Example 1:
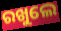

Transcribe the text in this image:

ରଖୁଲେ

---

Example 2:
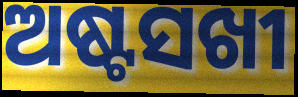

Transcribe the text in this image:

ଅଷ୍ଟସଖୀ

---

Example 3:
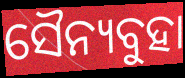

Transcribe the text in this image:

ସୈନ୍ୟବୁହା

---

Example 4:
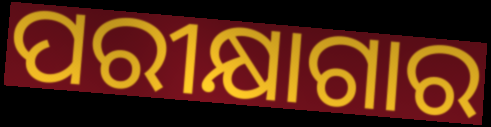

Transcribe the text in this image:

ପରୀକ୍ଷାଗାର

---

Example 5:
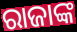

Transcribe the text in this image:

ରାଜାଙ୍କ